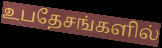
உபதேசங்களில்